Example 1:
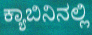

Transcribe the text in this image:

ಕ್ಯಾಬಿನಿನಲ್ಲಿ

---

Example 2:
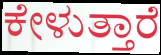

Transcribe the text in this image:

ಕೇಳುತ್ತಾರೆ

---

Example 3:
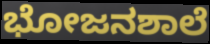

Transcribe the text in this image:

ಭೋಜನಶಾಲೆ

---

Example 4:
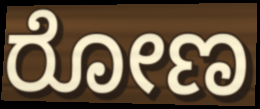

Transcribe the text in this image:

ರೋಣ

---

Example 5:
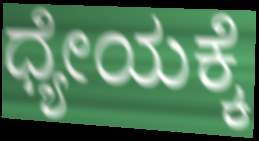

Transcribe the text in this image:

ಧ್ಯೇಯಕ್ಕೆ